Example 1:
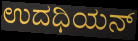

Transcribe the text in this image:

ಉದಧಿಯನ್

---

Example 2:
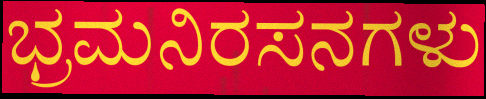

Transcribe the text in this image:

ಭ್ರಮನಿರಸನಗಳು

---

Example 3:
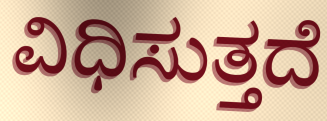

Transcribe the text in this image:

ವಿಧಿಸುತ್ತದೆ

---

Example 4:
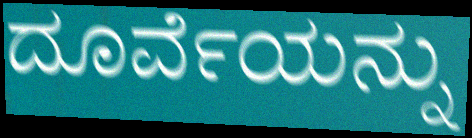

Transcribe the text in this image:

ದೂರ್ವೆಯನ್ನು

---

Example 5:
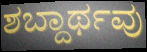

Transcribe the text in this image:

ಶಬ್ದಾರ್ಥವು